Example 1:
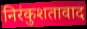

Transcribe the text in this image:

निरंकुशतावाद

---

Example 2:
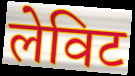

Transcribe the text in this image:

लेविट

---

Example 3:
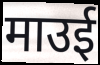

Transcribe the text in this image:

माउई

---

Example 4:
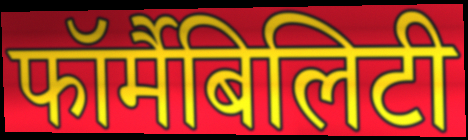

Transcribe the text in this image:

फॉर्मैबिलिटी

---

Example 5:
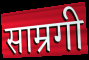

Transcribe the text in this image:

साम्रगी